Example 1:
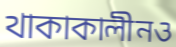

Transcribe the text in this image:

থাকাকালীনও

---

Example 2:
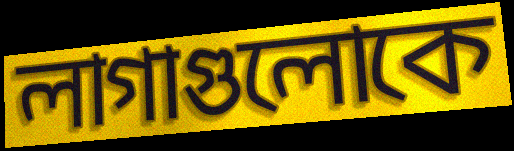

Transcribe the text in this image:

লাগাগুলোকে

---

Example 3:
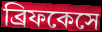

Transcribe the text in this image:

ব্রিফকেসে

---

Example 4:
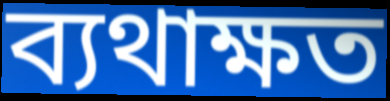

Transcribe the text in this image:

ব্যথাক্ষত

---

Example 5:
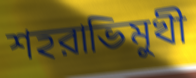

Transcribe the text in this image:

শহরাভিমুখী